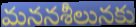
మననశీలునకు